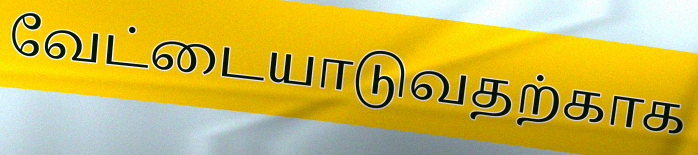
வேட்டையாடுவதற்காக